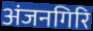
अंजनगिरि